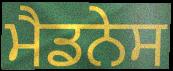
ਮੈਡਨੇਸ